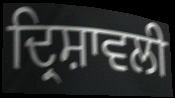
ਦ੍ਰਿਸ਼ਾਵਲੀ